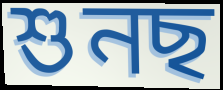
শুনছ